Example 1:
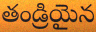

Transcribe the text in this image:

తండ్రియైన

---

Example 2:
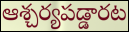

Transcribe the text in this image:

ఆశ్చర్యపడ్డారట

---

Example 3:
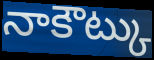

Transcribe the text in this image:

నాకౌట్కు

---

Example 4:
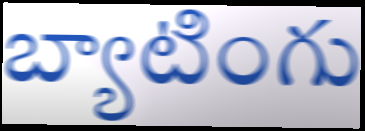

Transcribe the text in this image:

బ్యాటింగు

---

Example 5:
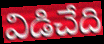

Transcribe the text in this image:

విడిచేది